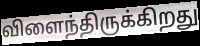
விளைந்திருக்கிறது